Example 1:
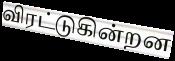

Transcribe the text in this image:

விரட்டுகின்றன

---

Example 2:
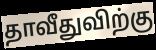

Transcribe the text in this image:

தாவீதுவிற்கு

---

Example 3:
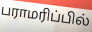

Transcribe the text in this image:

பராமரிப்பில்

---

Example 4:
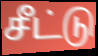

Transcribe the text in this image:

சீட்டு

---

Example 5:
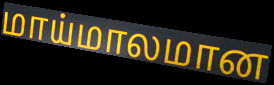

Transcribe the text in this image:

மாய்மாலமான